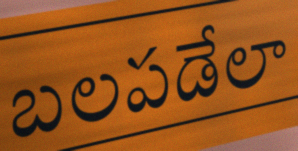
బలపడేలా